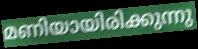
മണിയായിരിക്കുന്നു